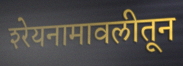
श्रेयनामावलीतून